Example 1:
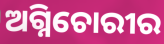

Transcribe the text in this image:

ଅଗ୍ନିଚୋରୀର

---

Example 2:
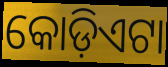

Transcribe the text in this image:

କୋଡ଼ିଏଟା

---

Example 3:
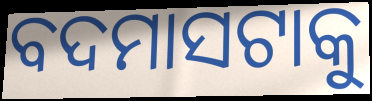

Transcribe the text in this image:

ବଦମାସଟାକୁ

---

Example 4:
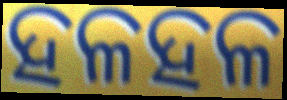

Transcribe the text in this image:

ହଳହଳ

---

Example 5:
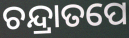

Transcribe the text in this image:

ଚନ୍ଦ୍ରାତପେ